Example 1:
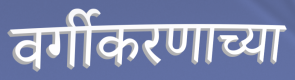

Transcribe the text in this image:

वर्गीकरणाच्या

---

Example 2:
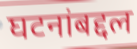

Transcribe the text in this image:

घटनांबद्दल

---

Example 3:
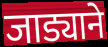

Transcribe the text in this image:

जाड्याने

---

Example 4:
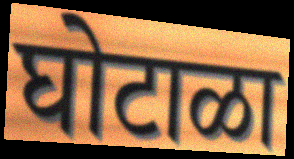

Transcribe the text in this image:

घोटाळा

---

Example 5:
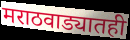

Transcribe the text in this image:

मराठवाड्यातही